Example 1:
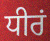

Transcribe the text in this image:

ਧੀਰਂ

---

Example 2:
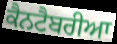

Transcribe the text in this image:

ਕੈਨਟੈਬਰੀਆ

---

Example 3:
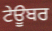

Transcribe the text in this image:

ਟੇਊਬਰ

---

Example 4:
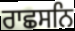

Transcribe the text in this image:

ਰਾਛਸਨਿ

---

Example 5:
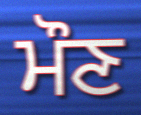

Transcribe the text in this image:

ਮੌਣ